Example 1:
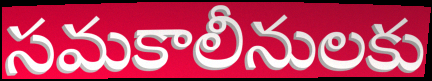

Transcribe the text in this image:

సమకాలీనులకు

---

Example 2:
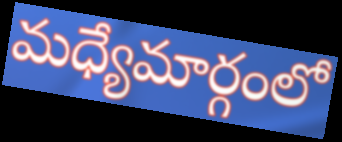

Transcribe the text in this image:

మధ్యేమార్గంలో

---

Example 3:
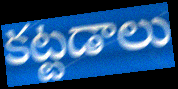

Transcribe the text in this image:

కట్టడాలు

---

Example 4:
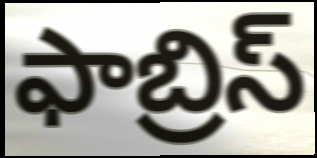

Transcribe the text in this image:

ఫాబ్రిస్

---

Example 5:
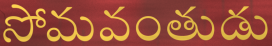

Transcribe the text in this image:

సోమవంతుడు